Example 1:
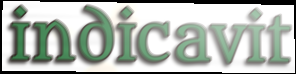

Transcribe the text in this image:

indicavit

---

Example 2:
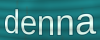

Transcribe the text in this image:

denna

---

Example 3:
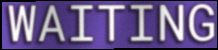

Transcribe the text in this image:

WAITING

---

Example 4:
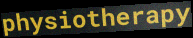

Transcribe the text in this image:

physiotherapy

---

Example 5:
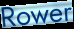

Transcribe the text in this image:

Rower